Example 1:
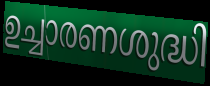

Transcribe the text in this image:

ഉച്ചാരണശുദ്ധി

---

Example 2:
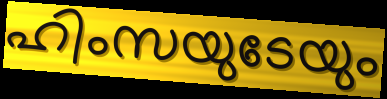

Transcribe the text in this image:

ഹിംസയുടേയും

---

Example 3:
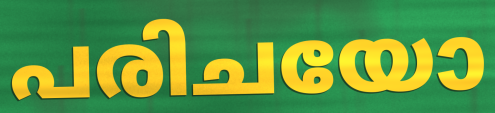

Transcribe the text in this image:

പരിചയോ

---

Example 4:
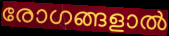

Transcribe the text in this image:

രോഗങ്ങളാൽ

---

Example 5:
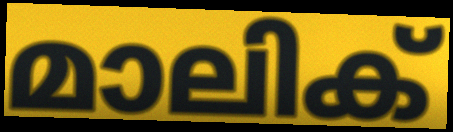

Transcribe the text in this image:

മാലിക്